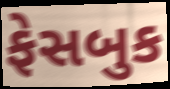
ફેસબુક